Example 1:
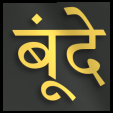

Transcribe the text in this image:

बूंदे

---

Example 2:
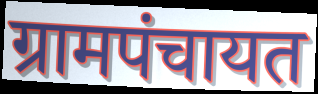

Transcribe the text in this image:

ग्रामपंचायत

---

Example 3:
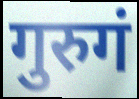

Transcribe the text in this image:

गुरुगं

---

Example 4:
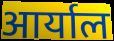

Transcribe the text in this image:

आर्याल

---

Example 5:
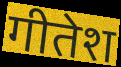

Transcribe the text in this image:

गीतेश